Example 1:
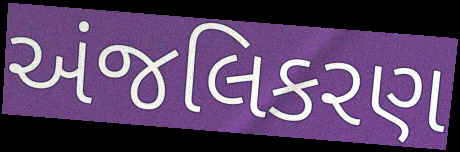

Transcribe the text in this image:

અંજલિકરણ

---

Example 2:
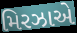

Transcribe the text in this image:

મિરઝાએ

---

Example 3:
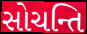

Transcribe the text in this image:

સોચન્તિ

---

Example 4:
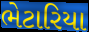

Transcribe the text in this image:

ભેટારિયા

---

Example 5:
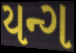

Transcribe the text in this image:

યન્ગ